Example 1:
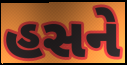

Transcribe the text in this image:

હસને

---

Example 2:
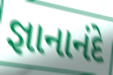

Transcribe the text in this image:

જ્ઞાનાનંદે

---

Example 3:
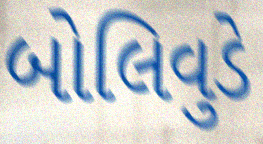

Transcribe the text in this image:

બોલિવુડે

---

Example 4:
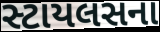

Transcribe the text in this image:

સ્ટાયલસના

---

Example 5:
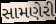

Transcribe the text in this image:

સામણેરી